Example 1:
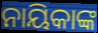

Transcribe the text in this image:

ନାୟିକାଙ୍କ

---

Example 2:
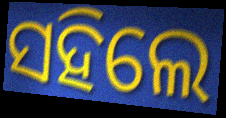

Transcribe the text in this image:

ସହିଲେ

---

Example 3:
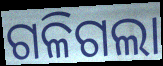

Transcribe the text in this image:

ଗଳିଗଲା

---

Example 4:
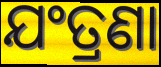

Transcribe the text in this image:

ଯଂତ୍ରଣା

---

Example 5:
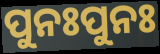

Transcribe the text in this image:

ପୁନଃପୁନଃ